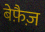
बेफ़ैज़